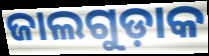
ଜାଲଗୁଡ଼ାକ